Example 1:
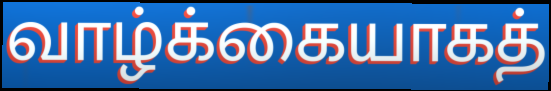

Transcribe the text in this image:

வாழ்க்கையாகத்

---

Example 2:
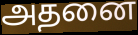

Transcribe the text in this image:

அதனை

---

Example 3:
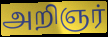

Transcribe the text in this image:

அறிஞர்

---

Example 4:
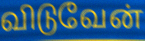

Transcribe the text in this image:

விடுவேன்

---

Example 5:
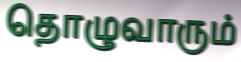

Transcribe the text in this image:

தொழுவாரும்